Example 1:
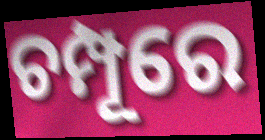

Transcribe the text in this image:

ଚମ୍ପୂରେ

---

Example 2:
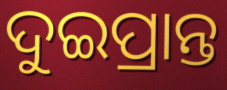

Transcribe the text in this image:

ଦୁଇପ୍ରାନ୍ତ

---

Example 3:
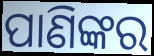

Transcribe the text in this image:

ପାଣିଙ୍କର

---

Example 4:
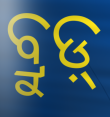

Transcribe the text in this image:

ବ୍ରୁଡ଼୍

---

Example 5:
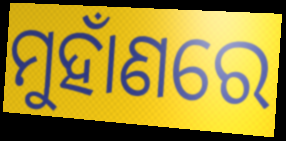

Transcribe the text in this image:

ମୁହାଁଣରେ